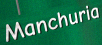
Manchuria